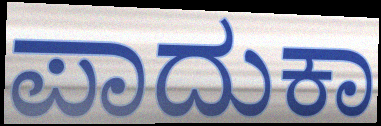
ಪಾದುಕಾ